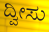
ದ್ವೀಸು